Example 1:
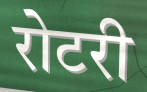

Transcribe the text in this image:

रोटरी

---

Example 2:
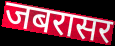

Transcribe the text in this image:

जबरासर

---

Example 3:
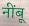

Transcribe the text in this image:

नींबू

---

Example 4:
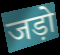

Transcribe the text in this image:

जड़ो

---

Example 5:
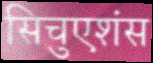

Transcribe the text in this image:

सिचुएशंस